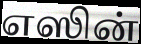
எஸின்